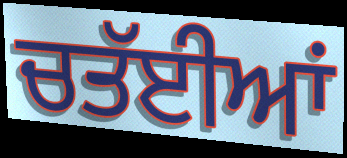
ਚਤੱਈਆਂ